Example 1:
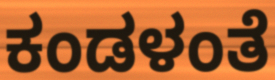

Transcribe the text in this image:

ಕಂಡಳಂತೆ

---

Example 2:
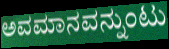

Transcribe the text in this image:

ಅವಮಾನವನ್ನುಂಟು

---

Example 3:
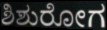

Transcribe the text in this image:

ಶಿಶುರೋಗ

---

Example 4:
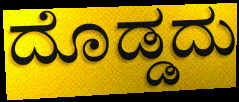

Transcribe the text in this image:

ದೊಡ್ಡದು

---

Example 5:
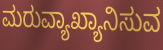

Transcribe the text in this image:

ಮರುವ್ಯಾಖ್ಯಾನಿಸುವ